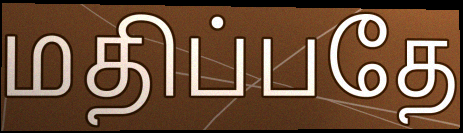
மதிப்பதே